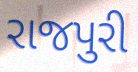
રાજપુરી